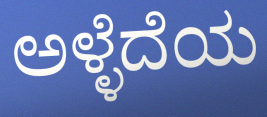
ಅಳ್ಳೆದೆಯ